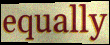
equally